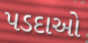
પડદાઓ